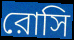
রোসি